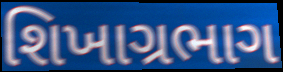
શિખાગ્રભાગ